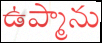
ఉప్మాను